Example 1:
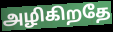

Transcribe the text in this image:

அழிகிறதே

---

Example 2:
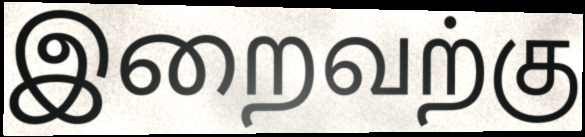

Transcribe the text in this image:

இறைவற்கு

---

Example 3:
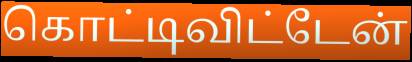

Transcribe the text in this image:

கொட்டிவிட்டேன்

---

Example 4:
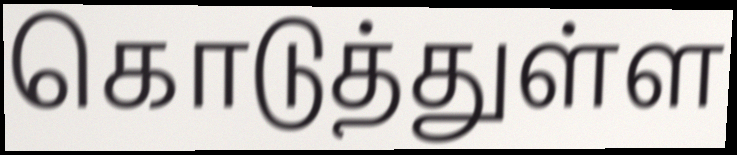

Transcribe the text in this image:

கொடுத்துள்ள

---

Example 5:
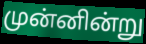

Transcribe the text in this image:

முன்னின்று